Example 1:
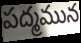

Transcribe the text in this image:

పద్మమున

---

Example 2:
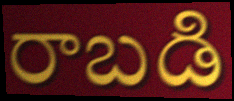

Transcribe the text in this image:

రాబడి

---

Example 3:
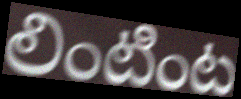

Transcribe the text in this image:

లింటింట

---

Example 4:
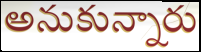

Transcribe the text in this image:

అనుకున్నారు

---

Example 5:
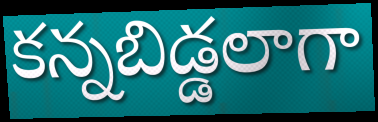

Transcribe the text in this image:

కన్నబిడ్డలాగా